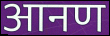
आनण